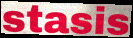
stasis